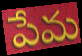
పేమ